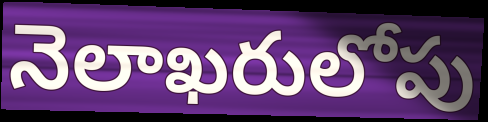
నెలాఖరులోపు